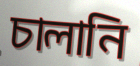
চালানি